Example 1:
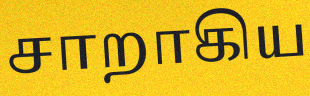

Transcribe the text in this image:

சாறாகிய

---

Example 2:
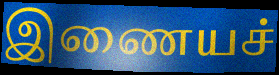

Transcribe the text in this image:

இணையச்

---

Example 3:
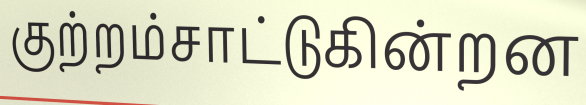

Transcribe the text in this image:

குற்றம்சாட்டுகின்றன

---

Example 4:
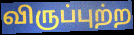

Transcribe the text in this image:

விருப்புற்ற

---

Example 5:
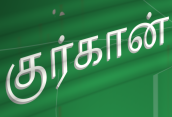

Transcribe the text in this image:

குர்கான்